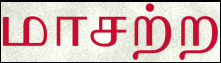
மாசற்ற